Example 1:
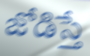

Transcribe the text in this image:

జోడిస్తే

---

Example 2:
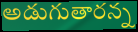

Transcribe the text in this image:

అడుగుతారన్న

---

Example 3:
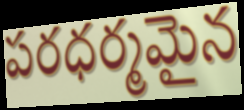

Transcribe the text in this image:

పరధర్మమైన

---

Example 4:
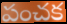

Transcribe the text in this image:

పంచక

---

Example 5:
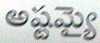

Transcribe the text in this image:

అష్టమ్యై